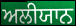
ਅਲੀਯਾਨ